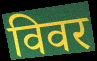
विवर